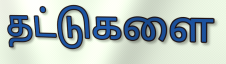
தட்டுகளை